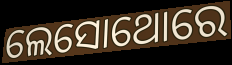
ଲେସୋଥୋରେ